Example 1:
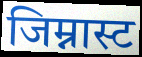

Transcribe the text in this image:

जिम्नास्ट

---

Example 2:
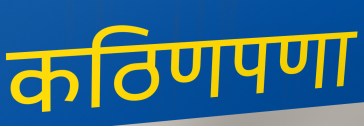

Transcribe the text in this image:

कठिणपणा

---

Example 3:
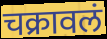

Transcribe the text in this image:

चक्रावलं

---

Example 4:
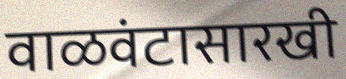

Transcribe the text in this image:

वाळवंटासारखी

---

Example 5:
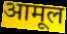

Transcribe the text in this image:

आमूल